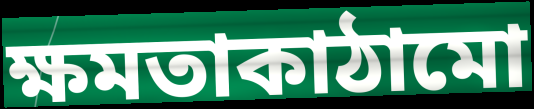
ক্ষমতাকাঠামো